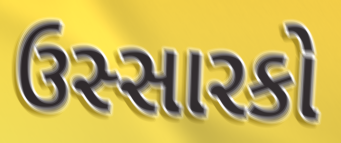
ઉસ્સારકો